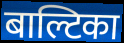
बाल्टिका